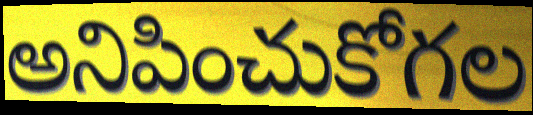
అనిపించుకోగల